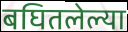
बघितलेल्या